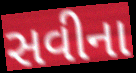
સવીના